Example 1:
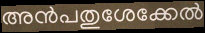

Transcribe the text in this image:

അൻപതുശേക്കേൽ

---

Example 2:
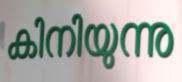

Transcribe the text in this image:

കിനിയുന്നു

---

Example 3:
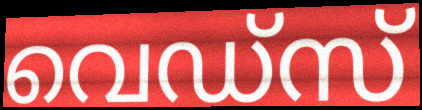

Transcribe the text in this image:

വെഡ്സ്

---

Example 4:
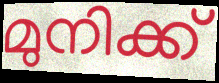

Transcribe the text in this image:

മുനിക്ക്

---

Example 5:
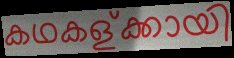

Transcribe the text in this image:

കഥകള്ക്കായി